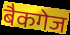
बैकगेज